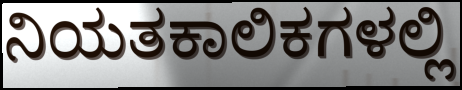
ನಿಯತಕಾಲಿಕಗಳಲ್ಲಿ